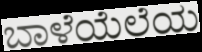
ಬಾಳೆಯೆಲೆಯ